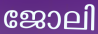
ജോലി